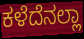
ಕಳೆದೆನಲ್ಲಾ